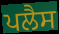
ਪਲੈਸ